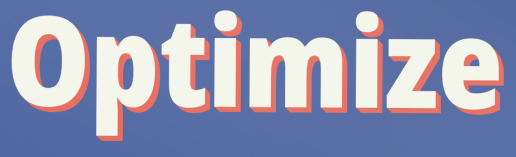
Optimize